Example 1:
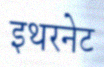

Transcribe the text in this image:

इथरनेट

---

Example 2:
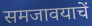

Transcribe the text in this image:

समजावयाचें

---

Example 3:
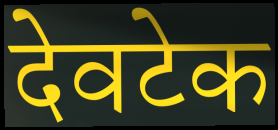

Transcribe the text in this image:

देवटेक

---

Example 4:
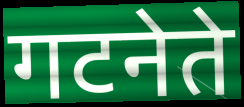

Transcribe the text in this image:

गटनेते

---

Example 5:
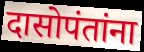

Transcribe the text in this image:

दासोपंतांना